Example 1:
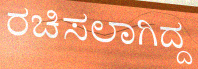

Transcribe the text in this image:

ರಚಿಸಲಾಗಿದ್ದ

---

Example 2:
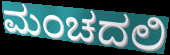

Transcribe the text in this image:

ಮಂಚದಲಿ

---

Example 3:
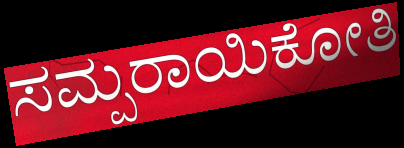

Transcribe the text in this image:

ಸಮ್ಪರಾಯಿಕೋತಿ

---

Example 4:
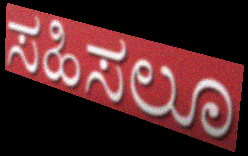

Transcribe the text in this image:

ಸಹಿಸಲೂ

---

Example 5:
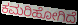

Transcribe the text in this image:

ಕಮರಿಹೋಗಿದೆ